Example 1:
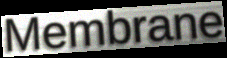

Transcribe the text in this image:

Membrane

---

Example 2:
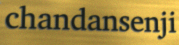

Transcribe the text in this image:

chandansenji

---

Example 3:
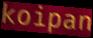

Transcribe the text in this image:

koipan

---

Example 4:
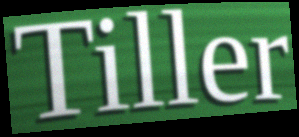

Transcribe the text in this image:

Tiller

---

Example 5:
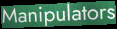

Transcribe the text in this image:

Manipulators